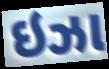
ઇઝા